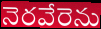
నెరవేరెను